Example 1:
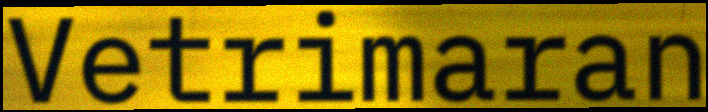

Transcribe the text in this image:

Vetrimaran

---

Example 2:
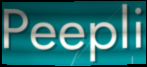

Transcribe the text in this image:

Peepli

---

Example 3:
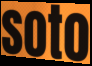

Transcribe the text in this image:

soto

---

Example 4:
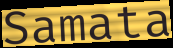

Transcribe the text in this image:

Samata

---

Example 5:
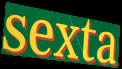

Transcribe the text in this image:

sexta